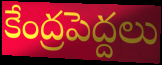
కేంద్రపెద్దలు